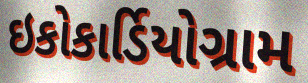
ઇકોકાર્ડિયોગ્રામ